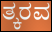
ತ್ಕರವ